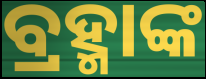
ବ୍ରହ୍ମାଙ୍କ